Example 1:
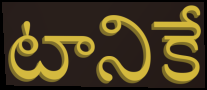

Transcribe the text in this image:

టానికే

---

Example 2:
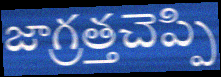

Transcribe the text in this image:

జాగ్రత్తచెప్పి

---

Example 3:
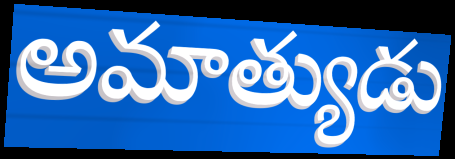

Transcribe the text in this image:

అమాత్యుడు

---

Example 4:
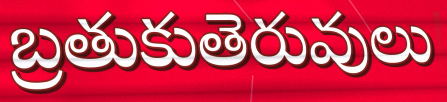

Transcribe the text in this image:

బ్రతుకుతెరువులు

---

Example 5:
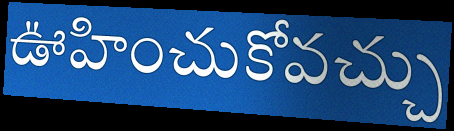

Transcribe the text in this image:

ఊహించుకోవచ్చు